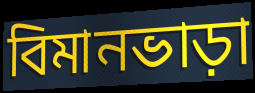
বিমানভাড়া